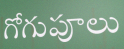
గోగుపూలు